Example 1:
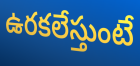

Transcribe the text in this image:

ఉరకలేస్తుంటే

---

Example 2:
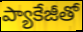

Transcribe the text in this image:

ప్యాకేజీతో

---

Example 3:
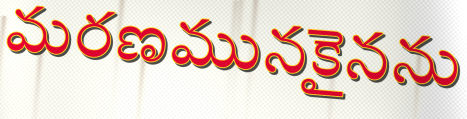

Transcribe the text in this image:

మరణమునకైనను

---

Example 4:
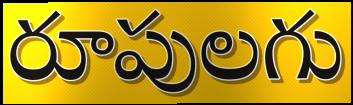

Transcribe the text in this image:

రూపులగు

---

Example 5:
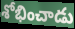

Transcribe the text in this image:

శోభించాడు